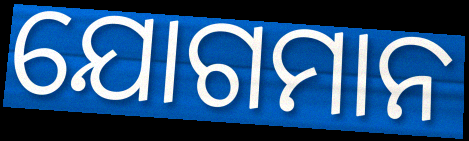
ଯୋଗମାନ